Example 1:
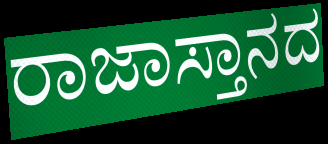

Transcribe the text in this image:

ರಾಜಾಸ್ತಾನದ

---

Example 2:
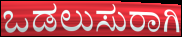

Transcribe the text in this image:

ಒಡಲುಸುರಾಗಿ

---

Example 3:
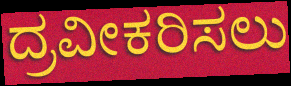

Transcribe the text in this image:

ದ್ರವೀಕರಿಸಲು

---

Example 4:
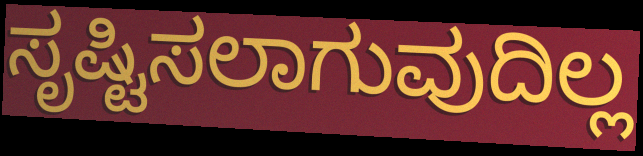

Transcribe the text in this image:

ಸೃಷ್ಟಿಸಲಾಗುವುದಿಲ್ಲ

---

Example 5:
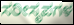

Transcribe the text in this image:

ಸರೀಸೃಪಗಳ